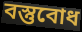
বস্তুবোধ